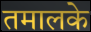
तमालके